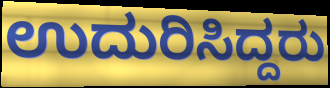
ಉದುರಿಸಿದ್ದರು